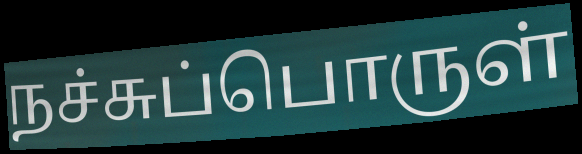
நச்சுப்பொருள்